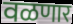
वळणार